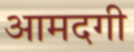
आमदगी